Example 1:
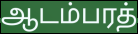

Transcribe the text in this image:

ஆடம்பரத்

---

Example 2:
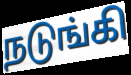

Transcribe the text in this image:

நடுங்கி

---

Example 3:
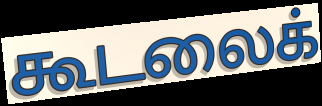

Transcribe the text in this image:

கூடலைக்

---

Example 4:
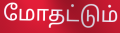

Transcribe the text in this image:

மோதட்டும்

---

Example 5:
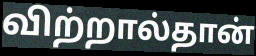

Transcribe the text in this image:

விற்றால்தான்